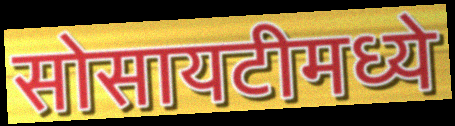
सोसायटीमध्ये